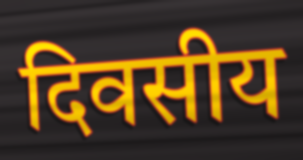
दिवसीय